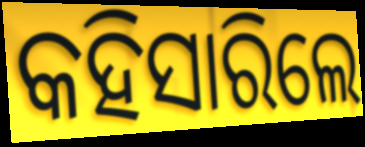
କହିସାରିଲେ